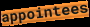
appointees